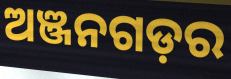
ଅଞ୍ଜନଗଡ଼ର